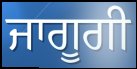
ਜਾਗੂਗੀ